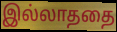
இல்லாததை